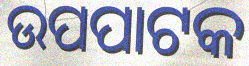
ଉପପାଟକ